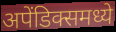
अपेंडिक्समध्ये